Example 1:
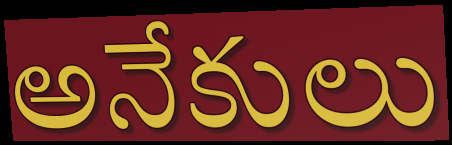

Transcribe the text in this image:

అనేకులు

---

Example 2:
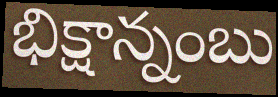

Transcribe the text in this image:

భిక్షాన్నంబు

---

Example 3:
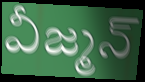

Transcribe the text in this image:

వీజ్మన్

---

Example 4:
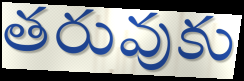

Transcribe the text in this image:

తరువుకు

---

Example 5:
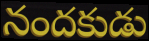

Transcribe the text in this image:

నందకుడు